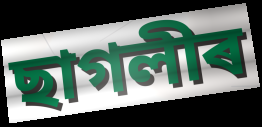
ছাগলীৰ